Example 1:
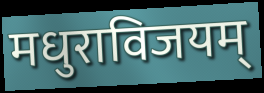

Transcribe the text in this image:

मधुराविजयम्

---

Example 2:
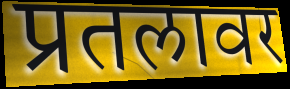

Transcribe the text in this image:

प्रतलावर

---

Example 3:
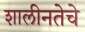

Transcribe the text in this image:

शालीनतेचे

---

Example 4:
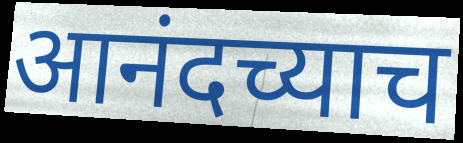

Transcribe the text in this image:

आनंदच्याच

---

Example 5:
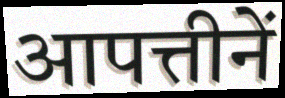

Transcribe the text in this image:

आपत्तीनें